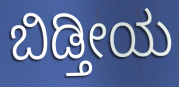
ಬಿಡ್ತೀಯ